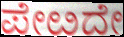
ಪೇೞದೇ